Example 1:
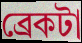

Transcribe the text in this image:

ব্রেকটা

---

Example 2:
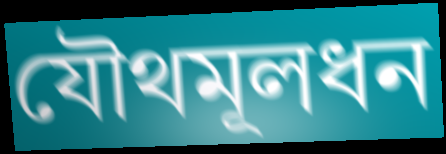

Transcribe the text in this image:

যৌথমূলধন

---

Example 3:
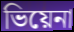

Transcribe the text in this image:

ভিয়েনা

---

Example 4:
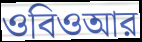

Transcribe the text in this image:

ওবিওআর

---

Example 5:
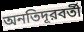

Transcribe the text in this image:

অনতিদূরবর্তী